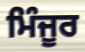
ਮਿੰਜੂਰ